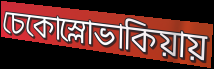
চেকোস্লোভাকিয়ায়